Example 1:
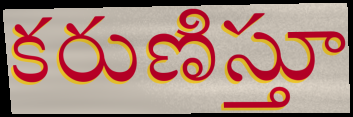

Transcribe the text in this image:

కరుణిస్తూ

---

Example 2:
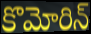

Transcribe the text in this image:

కొమోరిన్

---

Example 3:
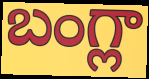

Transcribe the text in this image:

బంగ్లా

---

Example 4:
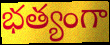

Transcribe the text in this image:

భత్యంగా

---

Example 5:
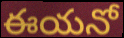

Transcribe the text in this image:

ఈయనో